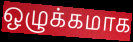
ஒழுக்கமாக